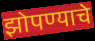
झोपण्याचे